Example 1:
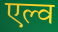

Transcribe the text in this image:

एल्व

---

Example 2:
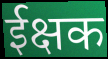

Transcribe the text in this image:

ईक्षक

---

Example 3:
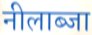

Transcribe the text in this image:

नीलाब्जा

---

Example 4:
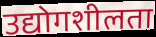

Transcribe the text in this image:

उद्योगशीलता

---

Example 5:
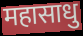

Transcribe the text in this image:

महासाधु